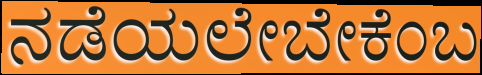
ನಡೆಯಲೇಬೇಕೆಂಬ